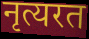
नृत्यरत